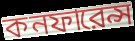
কনফারেন্স